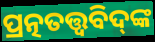
ପ୍ରତ୍ନତତ୍ତ୍ୱବିଦ୍‌ଙ୍କ